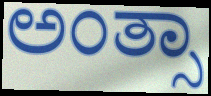
ಅಂತ್ಸಾ